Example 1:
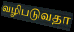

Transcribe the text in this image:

வழிபடுவதா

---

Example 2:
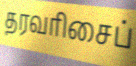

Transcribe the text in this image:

தரவரிசைப்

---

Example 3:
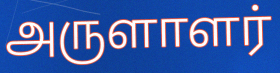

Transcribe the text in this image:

அருளாளர்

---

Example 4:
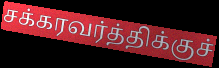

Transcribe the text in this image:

சக்கரவர்த்திக்குச்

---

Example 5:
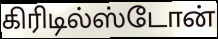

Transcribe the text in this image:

கிரிடில்ஸ்டோன்